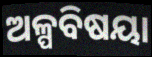
ଅଳ୍ପବିଷୟା